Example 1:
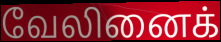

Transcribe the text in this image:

வேலினைக்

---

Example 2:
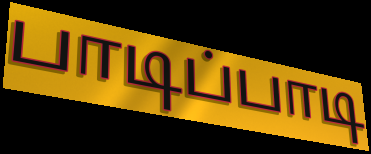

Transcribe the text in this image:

பாடிப்பாடி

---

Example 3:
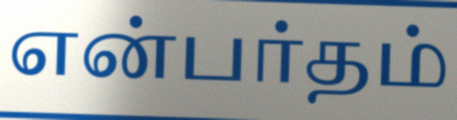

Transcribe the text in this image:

என்பர்தம்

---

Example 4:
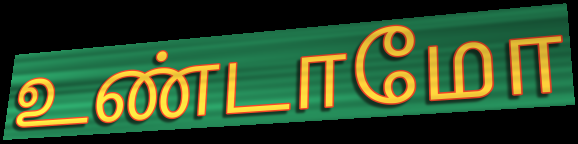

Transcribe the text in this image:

உண்டாமோ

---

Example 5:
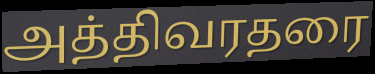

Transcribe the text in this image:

அத்திவரதரை